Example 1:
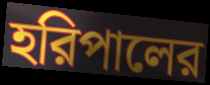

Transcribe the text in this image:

হরিপালের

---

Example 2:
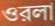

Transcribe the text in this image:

ওরলা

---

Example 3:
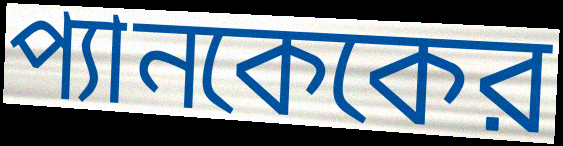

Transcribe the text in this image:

প্যানকেকের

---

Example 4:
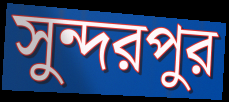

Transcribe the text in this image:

সুন্দরপুর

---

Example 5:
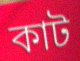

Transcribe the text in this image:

কাট